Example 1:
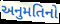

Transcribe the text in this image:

અનુમતિનો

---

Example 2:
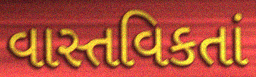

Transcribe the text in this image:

વાસ્તવિકતાં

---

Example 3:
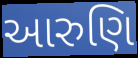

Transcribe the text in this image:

આરુણિ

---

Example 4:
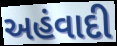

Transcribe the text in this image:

અહંવાદી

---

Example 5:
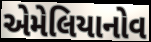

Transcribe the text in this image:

એમેલિયાનોવ